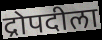
द्रोपदीला